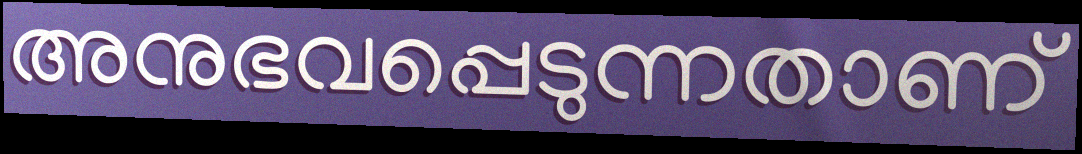
അനുഭവപ്പെടുന്നതാണ്